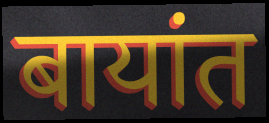
बायांत